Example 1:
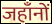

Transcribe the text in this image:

जहाँनों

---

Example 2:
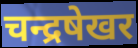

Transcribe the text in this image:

चन्द्रषेखर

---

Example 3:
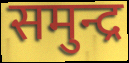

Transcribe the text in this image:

समुन्द्र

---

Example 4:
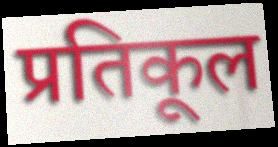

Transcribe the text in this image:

प्रतिकूल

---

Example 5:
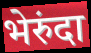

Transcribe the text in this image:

भेरुंदा